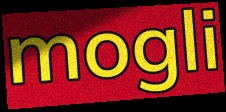
mogli